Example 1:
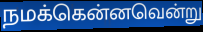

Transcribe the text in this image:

நமக்கென்னவென்று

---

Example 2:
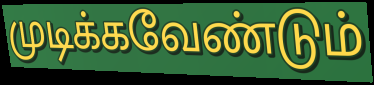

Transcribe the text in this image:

முடிக்கவேண்டும்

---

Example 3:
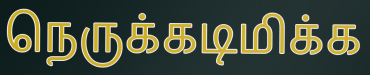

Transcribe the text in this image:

நெருக்கடிமிக்க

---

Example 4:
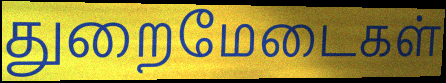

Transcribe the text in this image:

துறைமேடைகள்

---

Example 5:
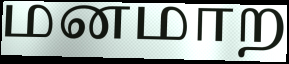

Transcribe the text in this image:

மனமாற